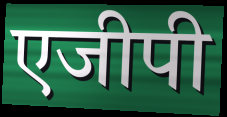
एजीपी